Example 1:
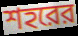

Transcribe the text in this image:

শহরের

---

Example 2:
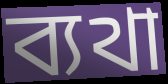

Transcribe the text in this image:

ব্যথা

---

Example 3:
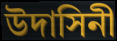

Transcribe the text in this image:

উদাসিনী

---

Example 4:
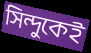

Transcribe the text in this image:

সিন্দুকেই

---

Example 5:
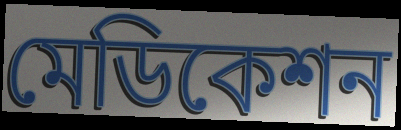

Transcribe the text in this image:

মেডিকেশন